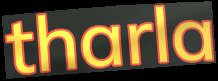
tharla